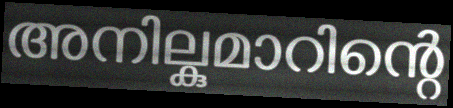
അനില്കുമാറിന്റെ